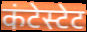
कंटेस्टेट